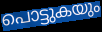
പൊട്ടുകയും